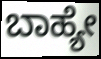
ಬಾಹ್ಯೇ